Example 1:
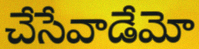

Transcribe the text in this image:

చేసేవాడేమో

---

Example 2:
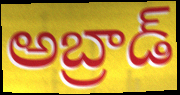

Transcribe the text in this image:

అబ్రాడ్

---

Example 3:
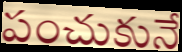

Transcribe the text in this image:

పంచుకునే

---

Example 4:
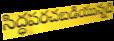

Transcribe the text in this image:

సిద్ధపరచబడియున్నది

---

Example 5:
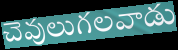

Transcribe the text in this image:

చెవులుగలవాడు